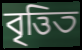
বৃত্তিত